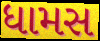
ધામસ